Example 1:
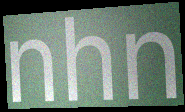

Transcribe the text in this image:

nhn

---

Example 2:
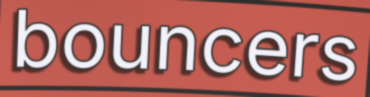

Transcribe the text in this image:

bouncers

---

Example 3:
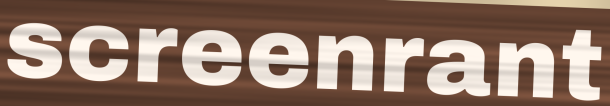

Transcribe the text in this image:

screenrant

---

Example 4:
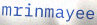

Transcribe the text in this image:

mrinmayee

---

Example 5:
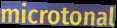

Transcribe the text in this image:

microtonal